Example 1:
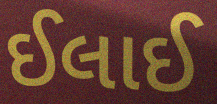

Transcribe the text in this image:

ઈલાઈ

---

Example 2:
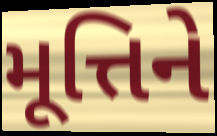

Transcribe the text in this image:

મૂત્તિને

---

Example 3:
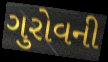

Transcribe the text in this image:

ગુરોવની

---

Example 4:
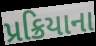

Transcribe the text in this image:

પ્રક્રિયાના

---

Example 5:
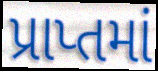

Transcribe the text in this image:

પ્રાપ્તમાં